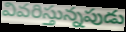
వివరిస్తున్నపుడు